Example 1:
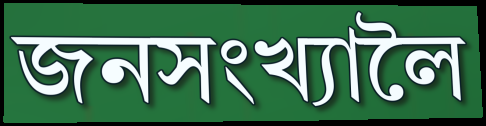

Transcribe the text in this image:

জনসংখ্যালৈ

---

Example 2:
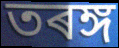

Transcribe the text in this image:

তৰঙ্গ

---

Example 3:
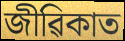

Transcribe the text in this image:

জীৱিকাত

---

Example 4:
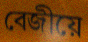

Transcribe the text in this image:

বেজীয়ে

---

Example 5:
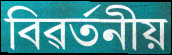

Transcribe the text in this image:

বিৱৰ্তনীয়